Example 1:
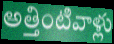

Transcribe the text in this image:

అత్తింటివాళ్లు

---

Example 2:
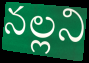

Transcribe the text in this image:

నల్లని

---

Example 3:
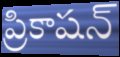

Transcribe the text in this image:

ప్రికాషన్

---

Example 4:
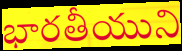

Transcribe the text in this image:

భారతీయుని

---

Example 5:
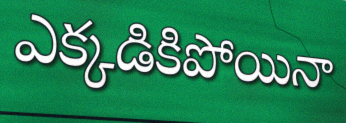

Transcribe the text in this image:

ఎక్కడికిపోయినా